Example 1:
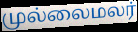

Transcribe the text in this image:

முல்லைமலர்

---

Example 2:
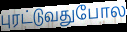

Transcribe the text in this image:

புரட்டுவதுபோல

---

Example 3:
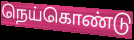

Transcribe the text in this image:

நெய்கொண்டு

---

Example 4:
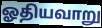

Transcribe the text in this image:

ஓதியவாறு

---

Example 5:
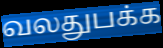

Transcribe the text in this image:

வலதுபக்க